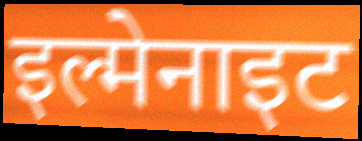
इल्मेनाइट